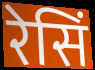
रेसिं